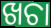
ଖଚା